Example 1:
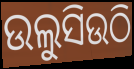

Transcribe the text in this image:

ଉଲୁସିଉଠି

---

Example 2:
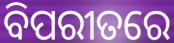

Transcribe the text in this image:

ବିପରୀତରେ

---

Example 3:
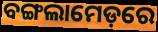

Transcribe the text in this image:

ବଙ୍ଗଲାମେଡ଼ରେ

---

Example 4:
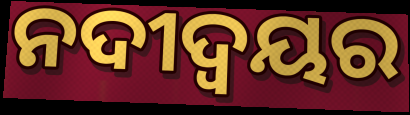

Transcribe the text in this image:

ନଦୀଦ୍ବୟର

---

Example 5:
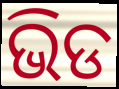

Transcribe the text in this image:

ଭିଡ